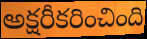
అక్షరీకరించింది